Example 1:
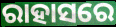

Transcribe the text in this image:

ରାହାସରେ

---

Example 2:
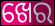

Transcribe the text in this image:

ଖେର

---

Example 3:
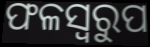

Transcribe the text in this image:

ଫଳସ୍ୱରୁପ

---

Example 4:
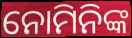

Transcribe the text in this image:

ନୋମିନିଙ୍କ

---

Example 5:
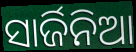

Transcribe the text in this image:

ସାର୍ଜିନିଆ